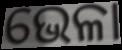
ଭେଳା